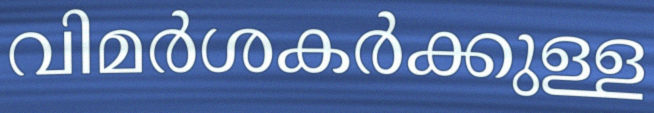
വിമർശകർക്കുള്ള